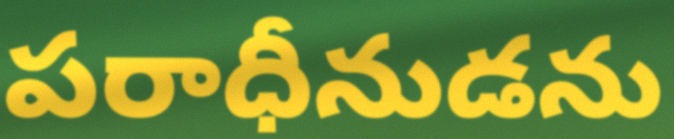
పరాధీనుడను